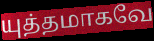
யுத்தமாகவே